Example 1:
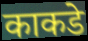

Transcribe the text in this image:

काकडे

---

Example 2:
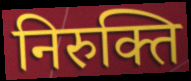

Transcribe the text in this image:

निरुक्ति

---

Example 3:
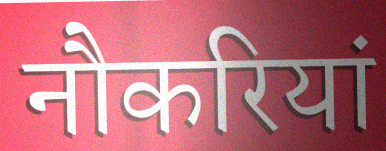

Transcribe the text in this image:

नौकरियां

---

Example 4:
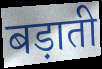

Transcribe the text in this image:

बड़ाती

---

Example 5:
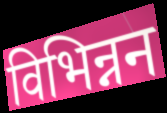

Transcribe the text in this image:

विभिन्नन